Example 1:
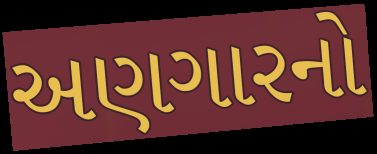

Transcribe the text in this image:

અણગારનો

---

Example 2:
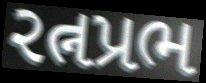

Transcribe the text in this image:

રત્નપ્રભ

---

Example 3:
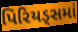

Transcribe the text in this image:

પિરિયડ્સમાં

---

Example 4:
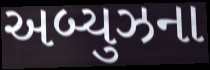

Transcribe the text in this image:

અબ્યુઝના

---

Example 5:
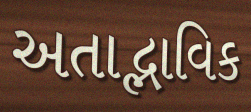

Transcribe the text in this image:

અતાદ્ભાવિક